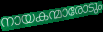
നായകന്മാരോടും